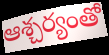
ఆశ్చర్యంతో